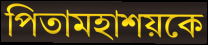
পিতামহাশয়কে